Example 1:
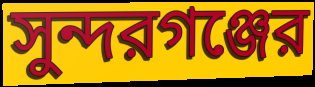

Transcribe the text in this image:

সুন্দরগঞ্জের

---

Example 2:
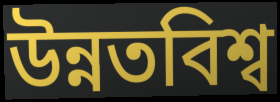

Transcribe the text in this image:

উন্নতবিশ্ব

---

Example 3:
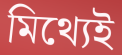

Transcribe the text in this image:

মিথ্যেই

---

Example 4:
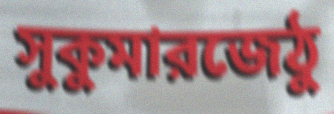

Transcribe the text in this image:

সুকুমারজেঠু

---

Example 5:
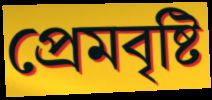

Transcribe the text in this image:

প্রেমবৃষ্টি